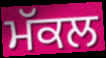
ਮੱਕਲ